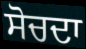
ਸੋਚਦਾ